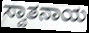
ಸ್ವಾತನಾಯ